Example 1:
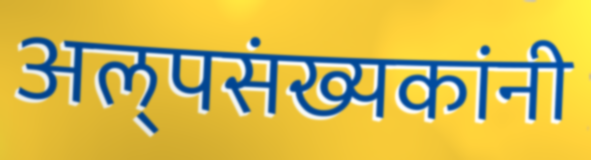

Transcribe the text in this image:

अल्पसंख्यकांनी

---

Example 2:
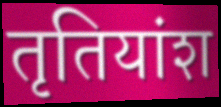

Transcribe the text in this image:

तृतियांश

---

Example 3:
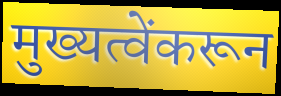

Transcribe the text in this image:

मुख्यत्वेंकरून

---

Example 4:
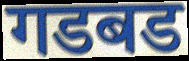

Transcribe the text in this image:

गडबड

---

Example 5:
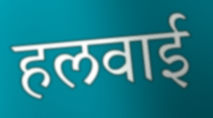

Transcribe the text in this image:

हलवाई